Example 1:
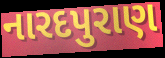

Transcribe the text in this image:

નારદપુરાણ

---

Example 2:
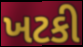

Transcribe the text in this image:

ખટકી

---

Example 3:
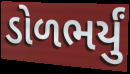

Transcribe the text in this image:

ડોળભર્યું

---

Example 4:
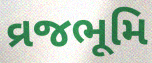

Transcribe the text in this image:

વ્રજભૂમિ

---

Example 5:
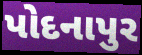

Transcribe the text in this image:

પોદનાપુર